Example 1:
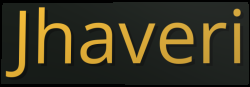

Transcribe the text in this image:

Jhaveri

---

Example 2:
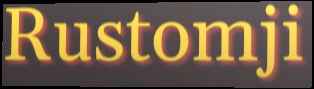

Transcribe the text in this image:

Rustomji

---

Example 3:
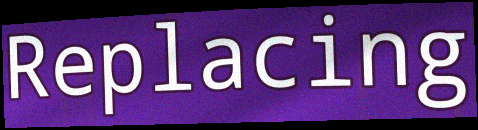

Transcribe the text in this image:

Replacing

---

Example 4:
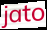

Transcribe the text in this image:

jato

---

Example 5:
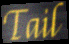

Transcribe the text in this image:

Tail